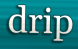
drip